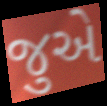
જુએ